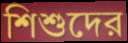
শিশুদের